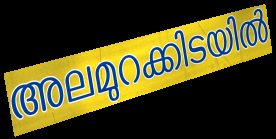
അലമുറക്കിടയിൽ